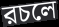
রচলে